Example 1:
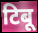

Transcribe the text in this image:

टिबू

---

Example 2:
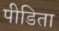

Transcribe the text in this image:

पीडिता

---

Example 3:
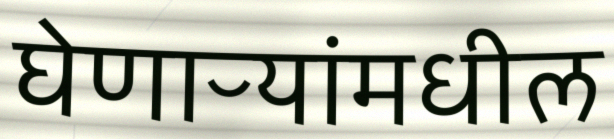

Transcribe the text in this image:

घेणाऱ्यांमधील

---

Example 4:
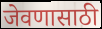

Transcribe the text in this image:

जेवणासाठी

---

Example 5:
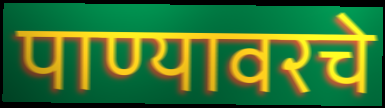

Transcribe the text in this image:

पाण्यावरचे